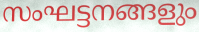
സംഘട്ടനങ്ങളും